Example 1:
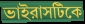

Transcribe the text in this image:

ভাইরাসটিকে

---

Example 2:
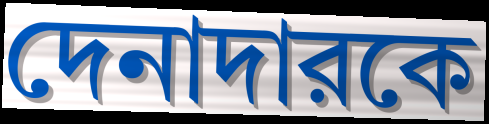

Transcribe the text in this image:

দেনাদারকে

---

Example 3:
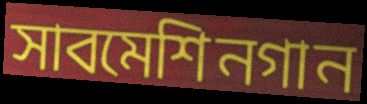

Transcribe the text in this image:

সাবমেশিনগান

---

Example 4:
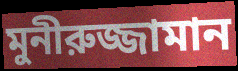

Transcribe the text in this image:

মুনীরুজ্জামান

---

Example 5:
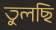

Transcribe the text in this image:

তুলছি